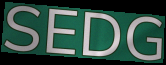
SEDG